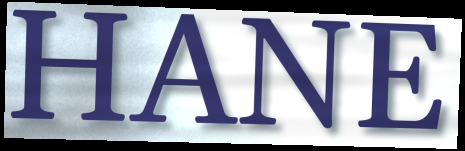
HANE